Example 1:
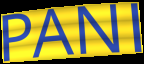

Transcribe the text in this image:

PANI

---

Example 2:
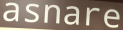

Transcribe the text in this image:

asnare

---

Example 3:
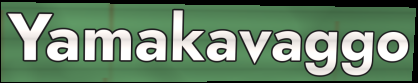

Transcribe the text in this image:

Yamakavaggo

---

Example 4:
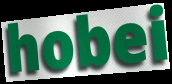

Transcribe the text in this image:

hobei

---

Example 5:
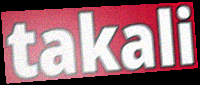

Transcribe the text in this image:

takali